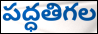
పద్ధతిగల